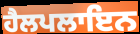
ਹੈਲਪਲਾਇਨ